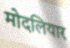
मोदलियार